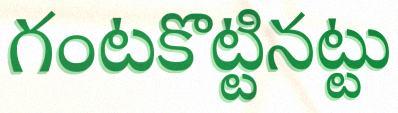
గంటకొట్టినట్టు